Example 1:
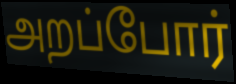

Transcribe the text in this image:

அறப்போர்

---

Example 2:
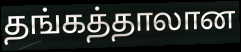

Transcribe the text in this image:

தங்கத்தாலான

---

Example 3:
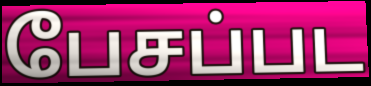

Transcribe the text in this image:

பேசப்பட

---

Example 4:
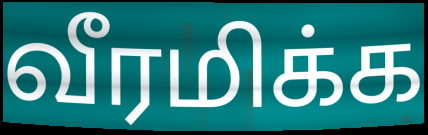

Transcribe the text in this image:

வீரமிக்க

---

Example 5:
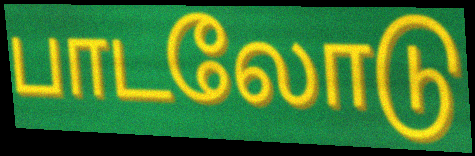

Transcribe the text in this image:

பாடலோடு